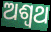
ଅଶ୍ବଥ